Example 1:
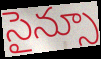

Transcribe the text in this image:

సైన్సూ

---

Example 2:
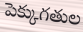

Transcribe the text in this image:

పెక్కుగతుల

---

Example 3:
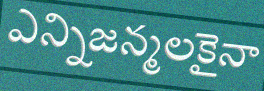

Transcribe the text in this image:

ఎన్నిజన్మలకైనా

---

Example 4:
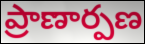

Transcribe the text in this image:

ప్రాణార్పణ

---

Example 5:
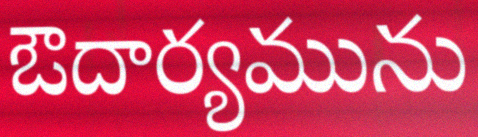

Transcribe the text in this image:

ఔదార్యమును